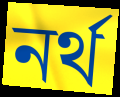
নৰ্থ